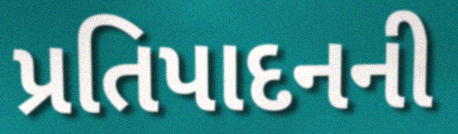
પ્રતિપાદનની